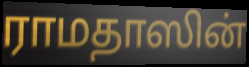
ராமதாஸின்